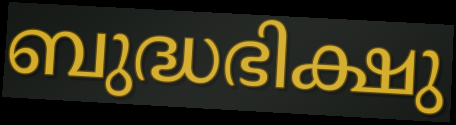
ബുദ്ധഭിക്ഷു